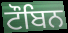
ਟੌਬਿਨ